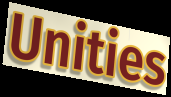
Unities